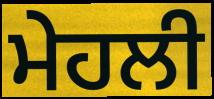
ਮੇਹਲੀ